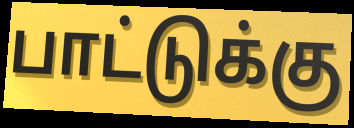
பாட்டுக்கு